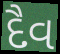
દૈવ